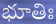
భూతిః